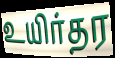
உயிர்தர